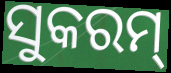
ସୁକରମ୍